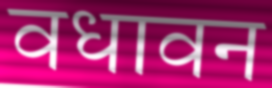
वधावन